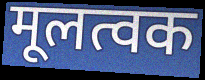
मूलत्वक